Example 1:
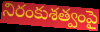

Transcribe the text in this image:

నిరంకుశత్వంపై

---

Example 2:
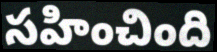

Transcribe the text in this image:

సహించింది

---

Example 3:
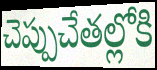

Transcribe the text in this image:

చెప్పుచేతల్లోకి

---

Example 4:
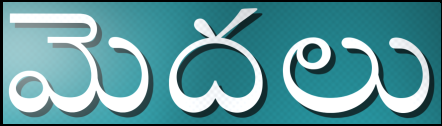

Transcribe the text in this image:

మెదలు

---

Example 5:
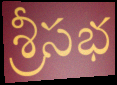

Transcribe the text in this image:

శ్రీసభ